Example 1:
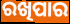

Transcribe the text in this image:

ରଖିପାର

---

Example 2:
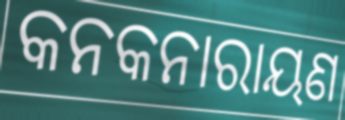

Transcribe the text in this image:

କନକନାରାୟଣ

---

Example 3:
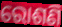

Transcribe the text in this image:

ରୋଶଣି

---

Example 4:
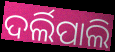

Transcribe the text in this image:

ଦର୍ଲିପାଲି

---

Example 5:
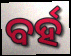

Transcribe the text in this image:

ବର୍ହ